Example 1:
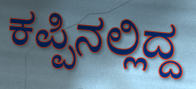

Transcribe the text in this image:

ಕಪ್ಪಿನಲ್ಲಿದ್ದ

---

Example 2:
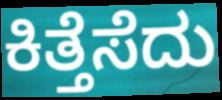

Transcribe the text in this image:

ಕಿತ್ತೆಸೆದು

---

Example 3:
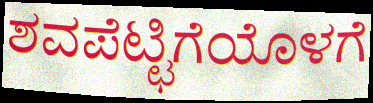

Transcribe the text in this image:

ಶವಪೆಟ್ಟಿಗೆಯೊಳಗೆ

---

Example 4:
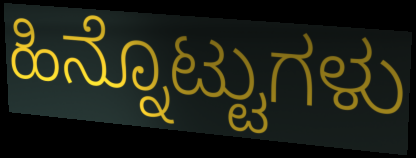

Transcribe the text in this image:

ಹಿನ್ನೊಟ್ಟುಗಳು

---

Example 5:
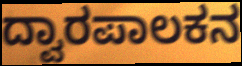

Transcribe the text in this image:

ದ್ವಾರಪಾಲಕನ